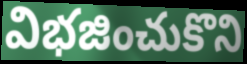
విభజించుకొని